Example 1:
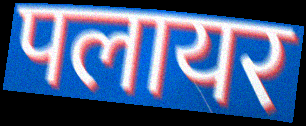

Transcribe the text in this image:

पलायर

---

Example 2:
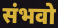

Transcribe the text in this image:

संभवो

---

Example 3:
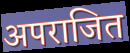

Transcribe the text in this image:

अपराजित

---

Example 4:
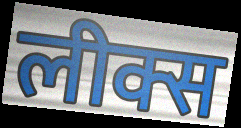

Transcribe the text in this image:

लीक्स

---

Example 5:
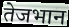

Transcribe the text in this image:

तेजभान